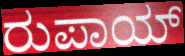
ರುಪಾಯ್